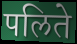
पलिते